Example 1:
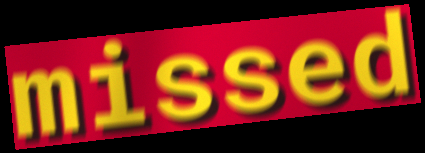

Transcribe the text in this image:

missed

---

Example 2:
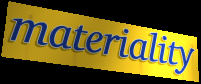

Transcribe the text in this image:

materiality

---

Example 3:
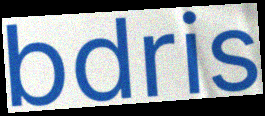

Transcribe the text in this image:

bdris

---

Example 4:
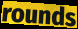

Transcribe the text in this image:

rounds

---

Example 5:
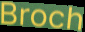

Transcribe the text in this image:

Broch